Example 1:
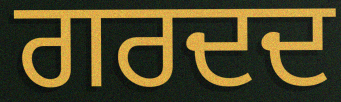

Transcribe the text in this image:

ਗਰਦਦ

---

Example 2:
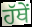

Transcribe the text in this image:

ਹੱਥੇਂ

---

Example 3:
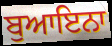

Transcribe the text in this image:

ਬੁਆਇਨਾ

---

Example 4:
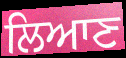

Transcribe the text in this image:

ਲਿਆਣ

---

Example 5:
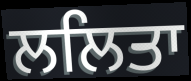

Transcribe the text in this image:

ਲਲਿਤਾ